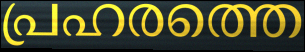
പ്രഹരത്തെ